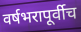
वर्षभरापूर्वीच